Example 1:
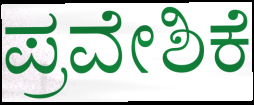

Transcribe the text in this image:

ಪ್ರವೇಶಿಕೆ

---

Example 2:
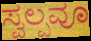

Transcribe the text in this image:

ಸ್ವಲ್ಪವೂ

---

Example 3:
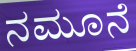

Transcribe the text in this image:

ನಮೂನೆ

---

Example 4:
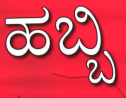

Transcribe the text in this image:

ಹಬ್ಬಿ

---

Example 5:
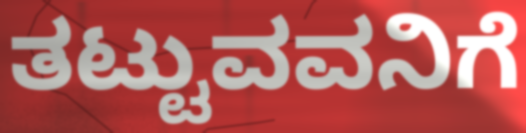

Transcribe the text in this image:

ತಟ್ಟುವವನಿಗೆ